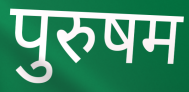
पुरुषम